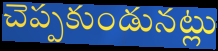
చెప్పకుండునట్లు